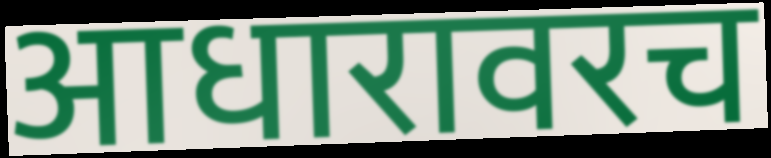
आधारावरच